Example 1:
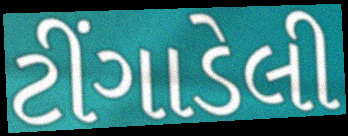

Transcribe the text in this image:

ટીંગાડેલી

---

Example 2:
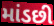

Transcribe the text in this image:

માંડછી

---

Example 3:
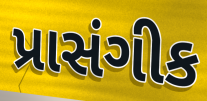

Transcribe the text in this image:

પ્રાસંગીક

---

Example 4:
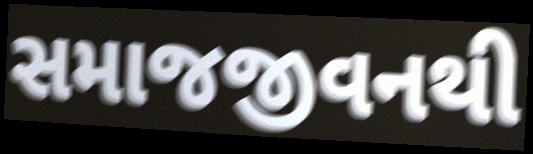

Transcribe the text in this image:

સમાજજીવનથી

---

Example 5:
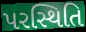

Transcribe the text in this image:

પરસ્થિતિ